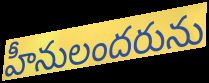
హీనులందరును